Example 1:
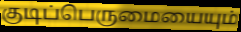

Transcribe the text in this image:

குடிப்பெருமையையும்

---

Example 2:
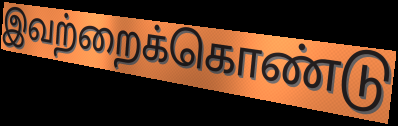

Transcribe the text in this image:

இவற்றைக்கொண்டு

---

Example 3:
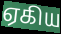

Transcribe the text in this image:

ஏகிய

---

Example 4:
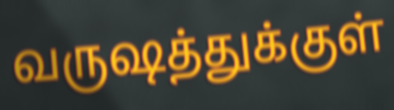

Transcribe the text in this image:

வருஷத்துக்குள்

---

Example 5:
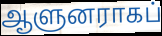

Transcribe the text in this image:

ஆளுனராகப்